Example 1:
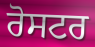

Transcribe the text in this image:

ਰੋਸਟਰ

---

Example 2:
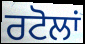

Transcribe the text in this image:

ਰਟੋਲਾਂ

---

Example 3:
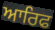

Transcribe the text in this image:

ਆਰਿਫ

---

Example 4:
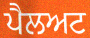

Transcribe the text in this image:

ਪੈਲਅਟ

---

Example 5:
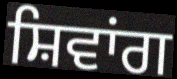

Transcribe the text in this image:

ਸ਼ਿਵਾਂਗ